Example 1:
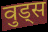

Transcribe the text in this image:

वुड्स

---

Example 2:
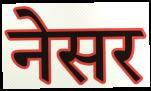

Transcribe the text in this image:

नेसर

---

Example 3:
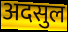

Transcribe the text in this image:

अदसुल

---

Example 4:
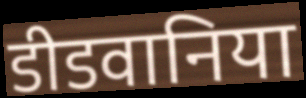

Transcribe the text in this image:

डीडवानिया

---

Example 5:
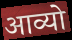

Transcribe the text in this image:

आव्यो